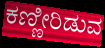
ಕಣ್ಣೀರಿಡುವ